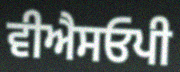
ਵੀਐਸਓਪੀ